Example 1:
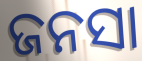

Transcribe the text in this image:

ଜନସା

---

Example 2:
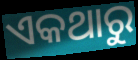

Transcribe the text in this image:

ଏକଥାରୁ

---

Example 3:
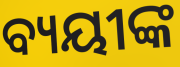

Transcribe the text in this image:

ବ୍ୟୟୀଙ୍କ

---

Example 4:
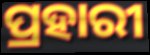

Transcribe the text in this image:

ପ୍ରହାରୀ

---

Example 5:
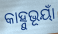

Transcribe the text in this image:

କାହ୍ନୁଭୂୟାଁ